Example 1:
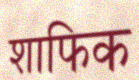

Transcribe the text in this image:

शाफिक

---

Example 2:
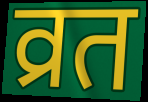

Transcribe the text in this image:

व्रत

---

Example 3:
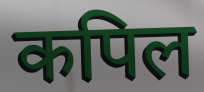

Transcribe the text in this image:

कपिल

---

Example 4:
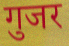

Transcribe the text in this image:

गुजर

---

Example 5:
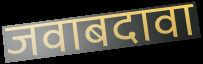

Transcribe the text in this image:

जवाबदावा